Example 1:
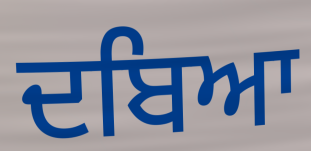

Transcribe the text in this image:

ਦਬਿਆ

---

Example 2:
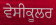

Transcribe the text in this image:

ਵੇਸੀਕੂਲਰ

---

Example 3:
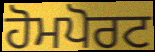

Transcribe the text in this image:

ਹੋਮਪੋਰਟ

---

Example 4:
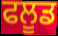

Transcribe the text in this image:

ਫਲੂਡ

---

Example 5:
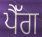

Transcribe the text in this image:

ਪੈੱਗ